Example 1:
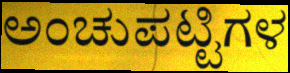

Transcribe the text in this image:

ಅಂಚುಪಟ್ಟಿಗಳ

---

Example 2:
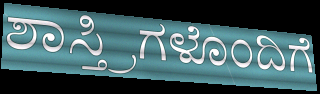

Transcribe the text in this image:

ಶಾಸ್ತ್ರಿಗಳೊಂದಿಗೆ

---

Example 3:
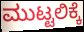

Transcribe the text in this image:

ಮುಟ್ಟಲಿಕ್ಕೆ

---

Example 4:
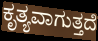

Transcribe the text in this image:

ಕೃತ್ಯವಾಗುತ್ತದೆ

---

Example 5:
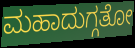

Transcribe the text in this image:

ಮಹಾದುಗ್ಗತೋ